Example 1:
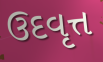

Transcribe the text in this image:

ઉદવૃત્ત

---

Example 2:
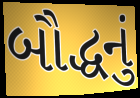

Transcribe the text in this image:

બૌદ્ધનું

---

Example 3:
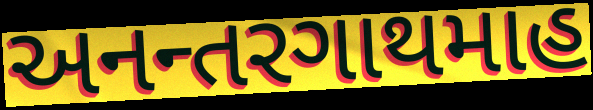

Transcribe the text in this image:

અનન્તરગાથમાહ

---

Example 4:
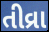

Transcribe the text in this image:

તીવ્રા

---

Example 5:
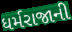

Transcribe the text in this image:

ધર્મરાજાની